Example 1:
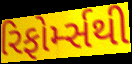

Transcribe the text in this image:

રિફોર્મ્સથી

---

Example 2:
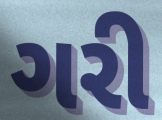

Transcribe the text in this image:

ગરી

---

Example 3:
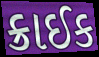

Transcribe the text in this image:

ક્રાઈક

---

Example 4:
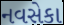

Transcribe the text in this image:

નવસેકા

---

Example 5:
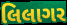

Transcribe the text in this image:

લિલાગર